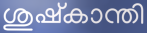
ശുഷ്കാന്തി